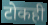
टोकही